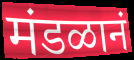
मंडळानं